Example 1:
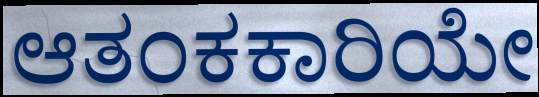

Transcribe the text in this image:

ಆತಂಕಕಾರಿಯೇ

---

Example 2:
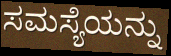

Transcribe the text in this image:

ಸಮಸ್ಯೆಯನ್ನು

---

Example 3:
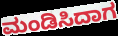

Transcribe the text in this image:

ಮಂಡಿಸಿದಾಗ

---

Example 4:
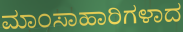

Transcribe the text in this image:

ಮಾಂಸಾಹಾರಿಗಳಾದ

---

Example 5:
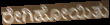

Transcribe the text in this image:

ರೇಗಿಹೋಯಿತು